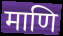
माणि